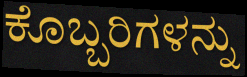
ಕೊಬ್ಬರಿಗಳನ್ನು